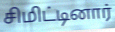
சிமிட்டினார்